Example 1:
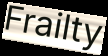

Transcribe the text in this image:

Frailty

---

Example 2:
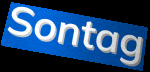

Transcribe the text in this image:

Sontag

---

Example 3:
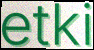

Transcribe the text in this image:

etki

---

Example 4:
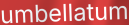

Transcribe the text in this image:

umbellatum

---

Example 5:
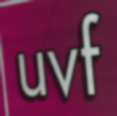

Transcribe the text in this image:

uvf